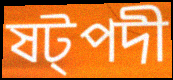
ষট্‌পদী